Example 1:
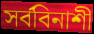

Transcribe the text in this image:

সর্ববিনাশী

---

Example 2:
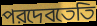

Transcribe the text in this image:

পরদেবতেতি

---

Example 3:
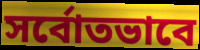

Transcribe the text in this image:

সর্বোতভাবে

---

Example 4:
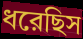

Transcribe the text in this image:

ধরেছিস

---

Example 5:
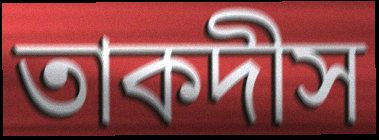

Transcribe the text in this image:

তাকদীস